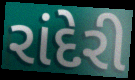
રાંદેરી